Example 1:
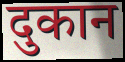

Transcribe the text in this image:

दुकान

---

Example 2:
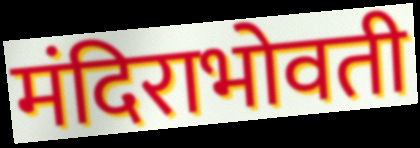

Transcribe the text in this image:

मंदिराभोवती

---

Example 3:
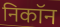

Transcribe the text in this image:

निकॉन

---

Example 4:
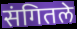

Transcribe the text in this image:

संगितले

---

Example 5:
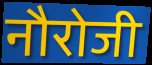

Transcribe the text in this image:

नौरोजी